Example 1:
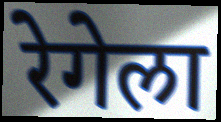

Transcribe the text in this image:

रेगेला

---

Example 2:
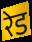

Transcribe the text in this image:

रेड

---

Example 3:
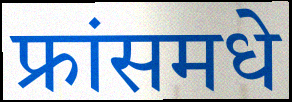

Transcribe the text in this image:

फ्रांसमधे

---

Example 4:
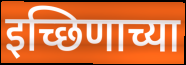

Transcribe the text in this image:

इच्छिणाच्या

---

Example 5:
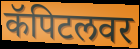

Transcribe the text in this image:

कॅपिटलवर